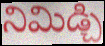
నిమిడ్చి